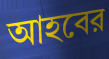
আহবের